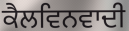
ਕੈਲਵਿਨਵਾਦੀ